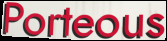
Porteous